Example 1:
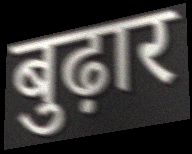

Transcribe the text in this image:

बुढ़ार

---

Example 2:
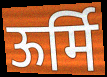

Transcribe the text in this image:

ऊर्मि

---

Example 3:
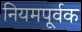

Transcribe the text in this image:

नियमपूर्वक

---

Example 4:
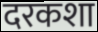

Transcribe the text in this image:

दरकशा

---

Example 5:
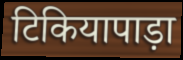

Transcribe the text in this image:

टिकियापाड़ा